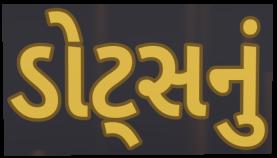
ડોટ્સનું